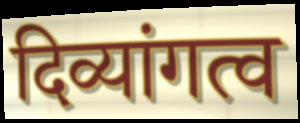
दिव्यांगत्व